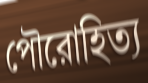
পৌরোহিত্য